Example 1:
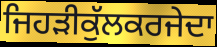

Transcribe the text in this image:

ਜਿਹੜੀਕੁੱਲਕਰਜੇਦਾ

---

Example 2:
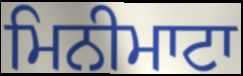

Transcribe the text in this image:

ਮਿਨੀਮਾਟਾ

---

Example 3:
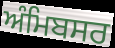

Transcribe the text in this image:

ਅੰਮਿਬਸਰ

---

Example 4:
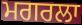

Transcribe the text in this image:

ਮਗਰਲਾ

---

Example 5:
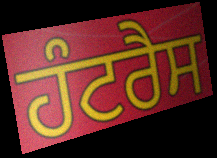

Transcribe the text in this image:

ਹੰਟਰੈਸ